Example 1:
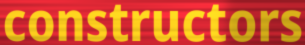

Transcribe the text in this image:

constructors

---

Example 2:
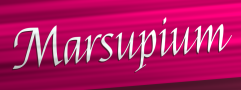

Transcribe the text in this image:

Marsupium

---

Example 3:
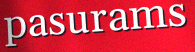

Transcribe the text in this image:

pasurams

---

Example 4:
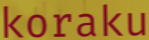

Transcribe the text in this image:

koraku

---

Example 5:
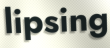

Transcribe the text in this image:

lipsing